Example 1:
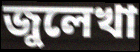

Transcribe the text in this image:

জুলেখা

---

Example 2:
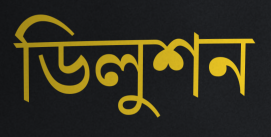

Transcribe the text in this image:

ডিলুশন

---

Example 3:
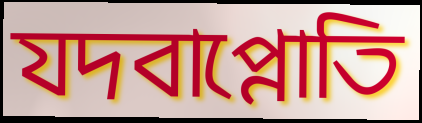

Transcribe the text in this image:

যদবাপ্নোতি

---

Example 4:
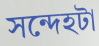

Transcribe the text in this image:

সন্দেহটা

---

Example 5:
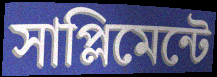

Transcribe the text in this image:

সাপ্লিমেন্টে